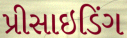
પ્રીસાઇડિંગ